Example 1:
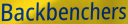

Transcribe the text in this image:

Backbenchers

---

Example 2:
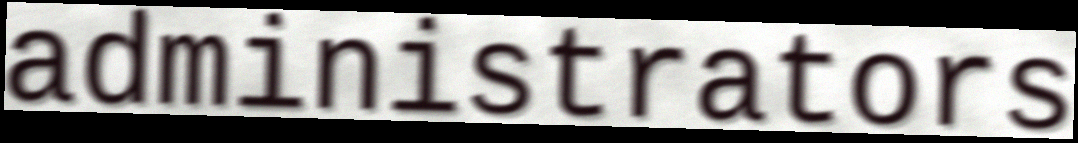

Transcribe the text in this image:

administrators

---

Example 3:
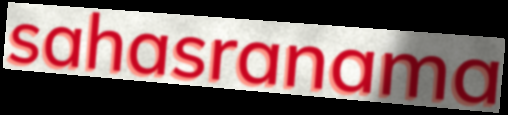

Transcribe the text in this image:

sahasranama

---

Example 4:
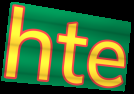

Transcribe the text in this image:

hte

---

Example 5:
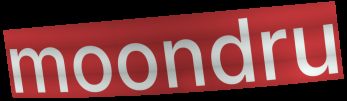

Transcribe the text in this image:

moondru